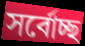
সৰ্বোচ্ছ